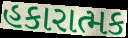
હકારાત્મક